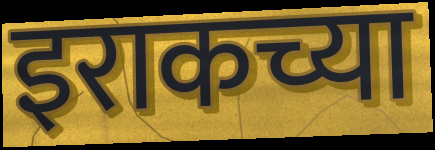
इराकच्या